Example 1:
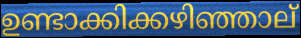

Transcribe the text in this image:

ഉണ്ടാക്കിക്കഴിഞ്ഞാല്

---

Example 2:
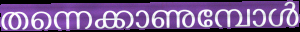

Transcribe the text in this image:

തന്നെക്കാണുമ്പോൾ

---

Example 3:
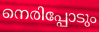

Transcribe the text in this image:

നെരിപ്പോടും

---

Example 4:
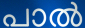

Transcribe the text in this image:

പാൽ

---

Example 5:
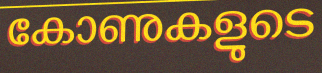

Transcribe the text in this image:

കോണുകളുടെ